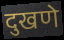
दुखणे